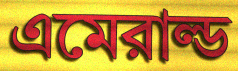
এমেরাল্ড